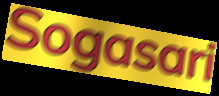
Sogasari